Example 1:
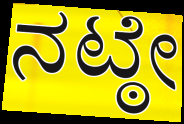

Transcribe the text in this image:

ನಟ್ಠೇ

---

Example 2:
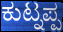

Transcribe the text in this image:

ಕುಟ್ನಪ್ಪ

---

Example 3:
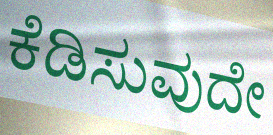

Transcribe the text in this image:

ಕೆಡಿಸುವುದೇ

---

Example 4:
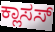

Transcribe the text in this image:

ಕ್ಲಾಸಸ್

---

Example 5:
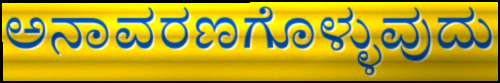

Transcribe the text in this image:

ಅನಾವರಣಗೊಳ್ಳುವುದು